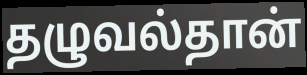
தழுவல்தான்